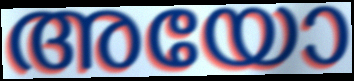
അയോ